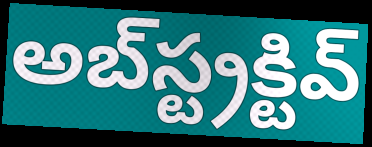
అబ్‌స్ట్రక్టివ్